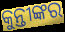
କୁନ୍ତୀଙ୍କର